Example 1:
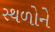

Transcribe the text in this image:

સ્થળોને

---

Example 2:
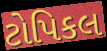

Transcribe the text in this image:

ટોપિકલ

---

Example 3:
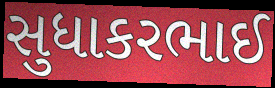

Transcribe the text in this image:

સુધાકરભાઈ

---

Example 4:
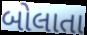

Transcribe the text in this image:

બોલાતા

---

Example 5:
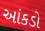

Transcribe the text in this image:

આંકડો